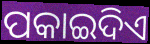
ପକାଇଦିଏ